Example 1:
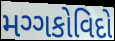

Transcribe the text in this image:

મગ્ગકોવિદો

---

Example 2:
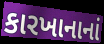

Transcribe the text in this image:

કારખાનાનાં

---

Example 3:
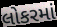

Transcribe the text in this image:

લોકરમાં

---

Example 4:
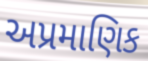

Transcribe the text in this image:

અપ્રમાણિક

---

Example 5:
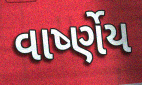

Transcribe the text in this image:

વાર્ષ્ણેય